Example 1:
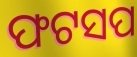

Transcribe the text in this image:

ଫଟସପ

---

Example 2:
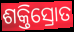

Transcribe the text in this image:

ଶକ୍ତିସ୍ରୋତ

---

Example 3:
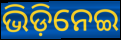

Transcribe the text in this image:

ଭିଡ଼ିନେଇ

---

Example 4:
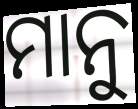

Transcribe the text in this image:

ମାନୁ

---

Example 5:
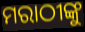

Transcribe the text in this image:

ମରାଠୀଙ୍କୁ